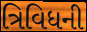
ત્રિવિધની